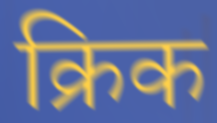
क्रिक